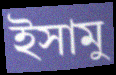
ইসামু